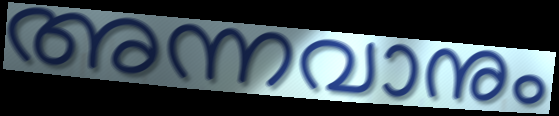
അന്നവാനും